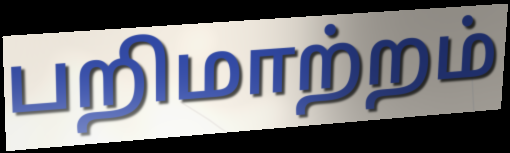
பறிமாற்றம்